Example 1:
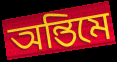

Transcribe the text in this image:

অন্তিমে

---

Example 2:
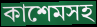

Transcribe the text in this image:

কাশেমসহ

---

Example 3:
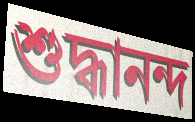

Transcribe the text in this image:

শুদ্ধানন্দ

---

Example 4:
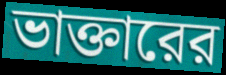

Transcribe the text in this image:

ভাক্তারের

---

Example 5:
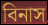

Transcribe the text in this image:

বিনাস